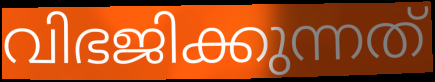
വിഭജിക്കുന്നത്